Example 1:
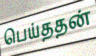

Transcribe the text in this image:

பெய்ததன்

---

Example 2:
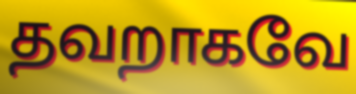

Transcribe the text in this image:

தவறாகவே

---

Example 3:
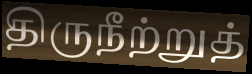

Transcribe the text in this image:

திருநீற்றுத்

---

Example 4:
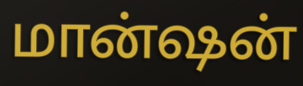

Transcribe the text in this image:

மான்ஷன்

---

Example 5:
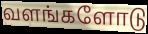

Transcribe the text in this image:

வளங்களோடு